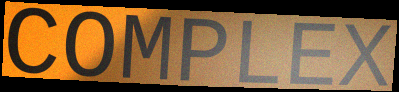
COMPLEX